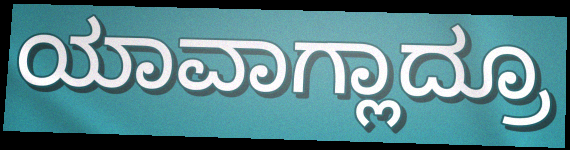
ಯಾವಾಗ್ಲಾದ್ರೂ